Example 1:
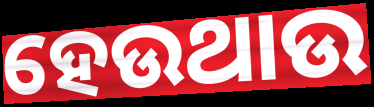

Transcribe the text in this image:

ହେଉଥାଉ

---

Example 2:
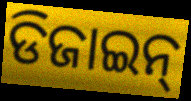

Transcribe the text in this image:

ଡିଜାଇନ୍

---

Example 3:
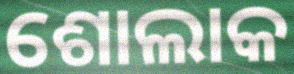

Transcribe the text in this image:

ଶୋଲାକ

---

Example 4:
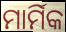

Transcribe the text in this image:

ମାର୍ମିକ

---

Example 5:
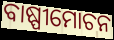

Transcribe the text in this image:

ବାଷ୍ପୀମୋଚନ